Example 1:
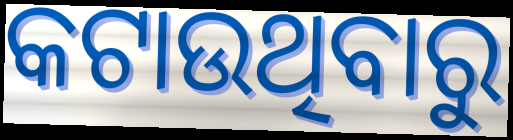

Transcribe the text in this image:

କଟାଉଥିବାରୁ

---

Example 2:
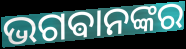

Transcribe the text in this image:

ଭଗଵାନଙ୍କର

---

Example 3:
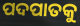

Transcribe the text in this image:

ପଦପାତକୁ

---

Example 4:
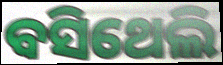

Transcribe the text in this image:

ବସିଥେଲି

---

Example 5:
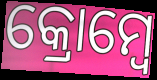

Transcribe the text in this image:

କ୍ରୋମ୍ବେ